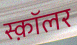
स्क़ॉलर